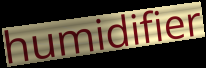
humidifier